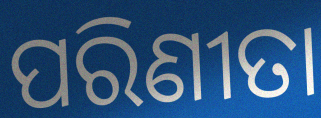
ପରିଣୀତା